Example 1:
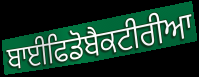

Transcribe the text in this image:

ਬਾਈਫਿਡੋਬੈਕਟੀਰੀਆ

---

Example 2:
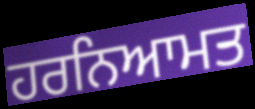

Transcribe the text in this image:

ਹਰਨਿਆਮਤ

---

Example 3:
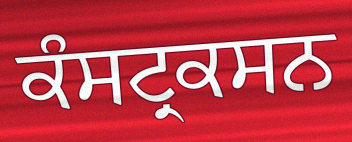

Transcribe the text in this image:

ਕੰਸਟ੍ਰਕਸਨ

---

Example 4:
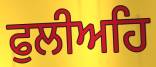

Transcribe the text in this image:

ਫੁਲੀਅਹਿ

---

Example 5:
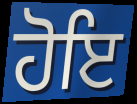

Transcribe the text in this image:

ਹੋਇ